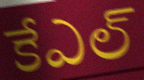
కేఎల్